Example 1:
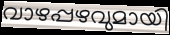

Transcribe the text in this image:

വാഴപ്പഴവുമായി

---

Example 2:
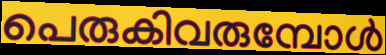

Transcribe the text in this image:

പെരുകിവരുമ്പോൾ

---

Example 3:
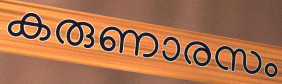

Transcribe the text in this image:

കരുണാരസം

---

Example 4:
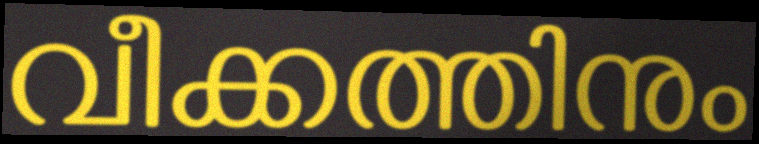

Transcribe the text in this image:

വീക്കത്തിനും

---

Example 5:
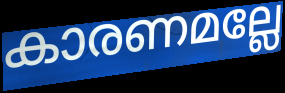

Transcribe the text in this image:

കാരണമല്ലേ